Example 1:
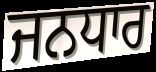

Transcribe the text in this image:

ਜਨਧਾਰ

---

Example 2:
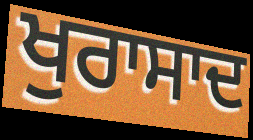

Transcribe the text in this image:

ਖੁਰਾਸਾਦ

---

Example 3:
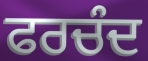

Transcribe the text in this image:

ਫਰਚੰਦ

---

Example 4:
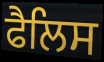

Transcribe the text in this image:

ਫੈਲਿਸ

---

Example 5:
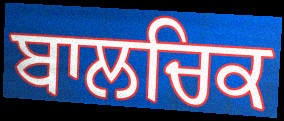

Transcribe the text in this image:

ਬਾਲਚਿਕ